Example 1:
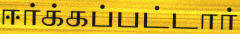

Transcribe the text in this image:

ஈர்க்கப்பட்டார்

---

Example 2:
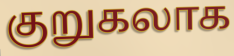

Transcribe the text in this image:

குறுகலாக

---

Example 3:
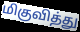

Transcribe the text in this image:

மிகுவித்து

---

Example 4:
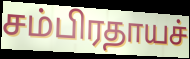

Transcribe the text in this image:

சம்பிரதாயச்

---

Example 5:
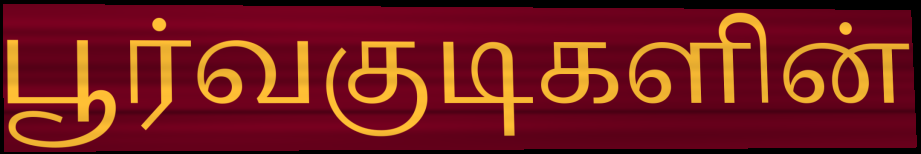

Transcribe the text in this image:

பூர்வகுடிகளின்